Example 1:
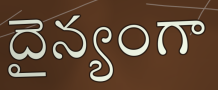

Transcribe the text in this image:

దైన్యంగా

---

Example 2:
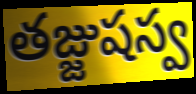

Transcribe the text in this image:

తజ్జుషస్వ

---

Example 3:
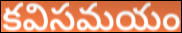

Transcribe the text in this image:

కవిసమయం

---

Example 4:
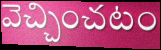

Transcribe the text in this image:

వెచ్చించటం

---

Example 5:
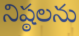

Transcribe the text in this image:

నిష్ఠలను